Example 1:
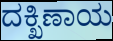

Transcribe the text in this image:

ದಕ್ಖಿಣಾಯ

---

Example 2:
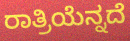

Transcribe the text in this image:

ರಾತ್ರಿಯೆನ್ನದೆ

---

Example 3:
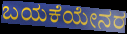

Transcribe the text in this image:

ಬಯಕೆಯೇನರ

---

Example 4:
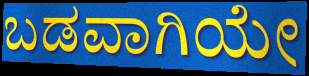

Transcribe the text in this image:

ಬಡವಾಗಿಯೇ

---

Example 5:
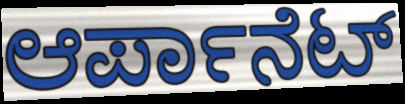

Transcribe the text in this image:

ಆರ್ಪಾನೆಟ್